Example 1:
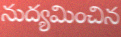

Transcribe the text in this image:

నుద్యమించిన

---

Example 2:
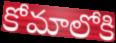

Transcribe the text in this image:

కోమాలోకి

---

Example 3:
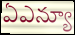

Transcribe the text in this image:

ఏఎన్యూ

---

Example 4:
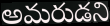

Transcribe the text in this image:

అమరుడని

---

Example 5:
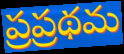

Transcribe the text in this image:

ప్రప్రథమ